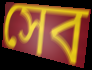
সেব